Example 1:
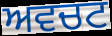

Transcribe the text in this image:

ਅਵਚਟ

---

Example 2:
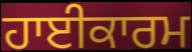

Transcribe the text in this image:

ਹਾਈਕਾਰਮ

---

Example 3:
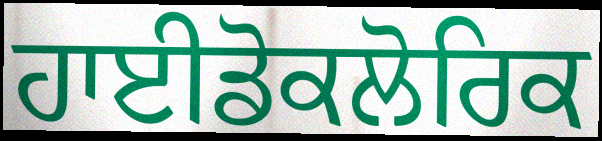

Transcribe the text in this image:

ਹਾਈਡੋਕਲੋਰਿਕ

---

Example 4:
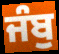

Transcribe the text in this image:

ਜੰਬੁ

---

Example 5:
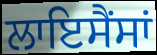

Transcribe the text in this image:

ਲਾਇਸੈਂਸਾਂ